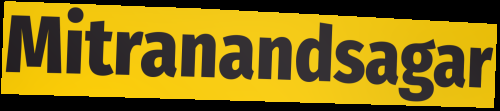
Mitranandsagar